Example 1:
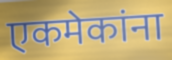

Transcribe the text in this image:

एकमेकांना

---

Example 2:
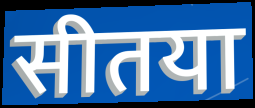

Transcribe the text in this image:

सीतया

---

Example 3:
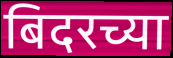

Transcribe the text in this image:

बिदरच्या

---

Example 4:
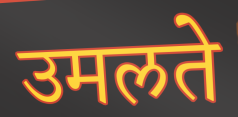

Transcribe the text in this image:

उमलते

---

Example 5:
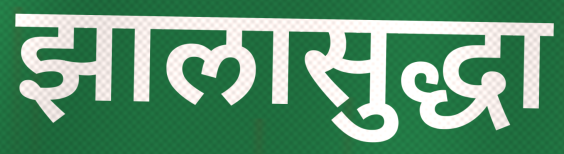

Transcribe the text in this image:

झालासुद्धा